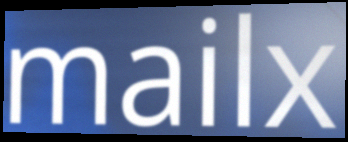
mailx